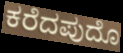
ಕರೆದಪುದೊ